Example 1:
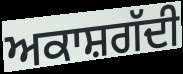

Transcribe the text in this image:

ਅਕਾਸ਼ਗੱਦੀ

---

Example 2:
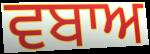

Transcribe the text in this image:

ਵਬਾਅ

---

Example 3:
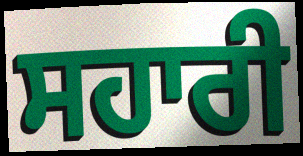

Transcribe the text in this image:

ਸਹਾਰੀ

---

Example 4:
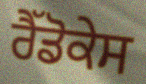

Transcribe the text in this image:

ਰੈੱਡੋਕੇਸ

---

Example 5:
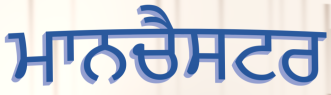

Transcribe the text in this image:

ਮਾਨਚੈਸਟਰ